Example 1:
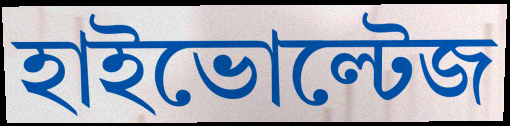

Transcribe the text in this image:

হাইভোল্টেজ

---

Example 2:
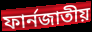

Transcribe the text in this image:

ফার্নজাতীয়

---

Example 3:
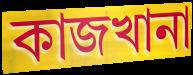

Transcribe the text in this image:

কাজখানা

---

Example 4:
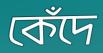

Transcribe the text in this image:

কেঁদে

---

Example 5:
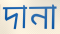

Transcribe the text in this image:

দানা